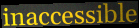
inaccessible